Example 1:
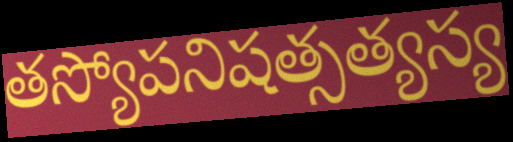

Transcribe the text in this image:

తస్యోపనిషత్సత్యస్య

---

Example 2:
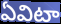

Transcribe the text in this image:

ఏవిటా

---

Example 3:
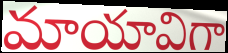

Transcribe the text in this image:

మాయావిగా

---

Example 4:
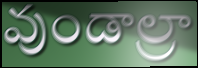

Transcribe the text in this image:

వుండాల్రా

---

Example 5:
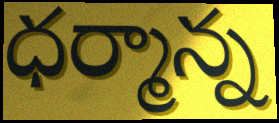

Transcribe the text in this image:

ధర్మాన్న